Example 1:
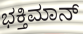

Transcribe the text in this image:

ಭಕ್ತಿಮಾನ್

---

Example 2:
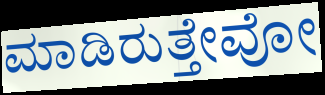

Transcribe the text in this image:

ಮಾಡಿರುತ್ತೇವೋ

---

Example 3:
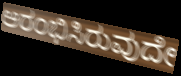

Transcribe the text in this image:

ಆರಂಭಿಸಿರುವುದೇ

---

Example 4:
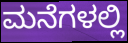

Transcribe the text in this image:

ಮನೆಗಳಲ್ಲಿ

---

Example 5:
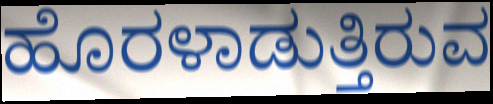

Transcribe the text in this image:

ಹೊರಳಾಡುತ್ತಿರುವ